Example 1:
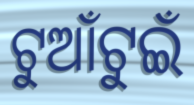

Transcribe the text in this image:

ଟୁଆଁଟୁଇଁ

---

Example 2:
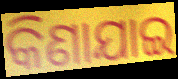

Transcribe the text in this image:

କିଣାଯାଇ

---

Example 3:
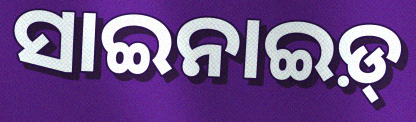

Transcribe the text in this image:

ସାଇନାଇଡ଼୍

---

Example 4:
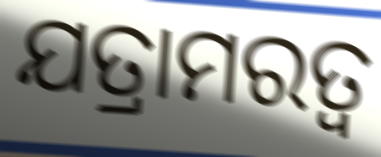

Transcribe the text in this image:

ଯତ୍ରାମରତ୍ଵ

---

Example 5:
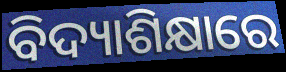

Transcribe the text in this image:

ବିଦ୍ୟାଶିକ୍ଷାରେ